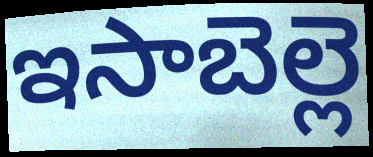
ఇసాబెల్లె